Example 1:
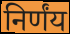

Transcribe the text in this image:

निर्णंय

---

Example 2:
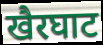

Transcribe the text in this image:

खैरघाट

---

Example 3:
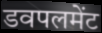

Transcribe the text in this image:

डवपलमेंट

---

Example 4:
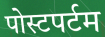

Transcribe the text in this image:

पोस्टपर्टम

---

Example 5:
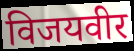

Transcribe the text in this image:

विजयवीर